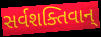
સર્વશક્તિવાન્